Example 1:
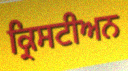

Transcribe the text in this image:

ਕ੍ਰਿਸਟੀਅਨ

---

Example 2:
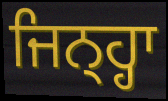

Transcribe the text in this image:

ਜਿਨ੍ਹ੍ਹਾ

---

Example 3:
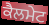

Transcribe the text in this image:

ਕੈਲਮੇਟ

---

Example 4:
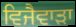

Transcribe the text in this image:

ਵਿਜੈਵਾੜਾ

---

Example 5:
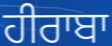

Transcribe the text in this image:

ਹੀਰਾਬਾ